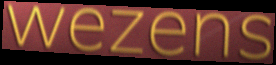
wezens